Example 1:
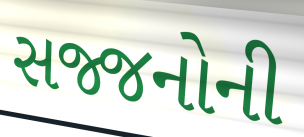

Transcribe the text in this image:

સજ્જનોની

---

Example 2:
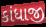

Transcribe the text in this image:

કાંધાજી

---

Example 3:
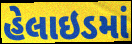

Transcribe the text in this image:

હેલાઇડમાં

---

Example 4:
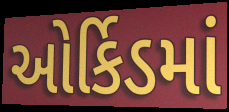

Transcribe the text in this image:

ઓર્કિડમાં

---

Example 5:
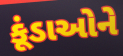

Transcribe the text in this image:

કૂંડાઓને